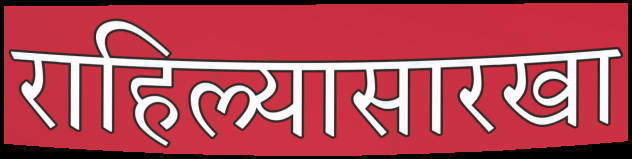
राहिल्यासारखा